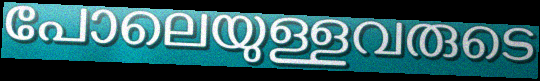
പോലെയുള്ളവരുടെ